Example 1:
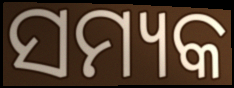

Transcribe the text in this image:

ସମ୍ୟକ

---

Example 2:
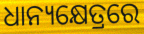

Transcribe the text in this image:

ଧାନ୍ୟକ୍ଷେତ୍ରରେ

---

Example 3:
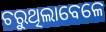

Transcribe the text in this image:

ଚରୁଥିଲାବେଳେ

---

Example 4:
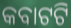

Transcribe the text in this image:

କବାଟଟି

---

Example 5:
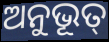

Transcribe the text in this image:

ଅନୁଭୂତ୍